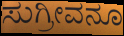
ಸುಗ್ರೀವನೂ